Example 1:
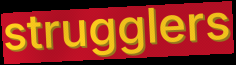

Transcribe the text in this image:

strugglers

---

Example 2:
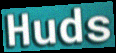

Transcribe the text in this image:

Huds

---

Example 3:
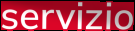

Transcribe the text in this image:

servizio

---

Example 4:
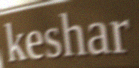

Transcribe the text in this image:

keshar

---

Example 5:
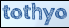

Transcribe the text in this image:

tothyo